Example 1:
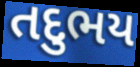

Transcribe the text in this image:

તદુભય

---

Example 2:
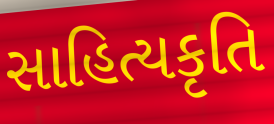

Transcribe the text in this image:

સાહિત્યકૃતિ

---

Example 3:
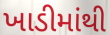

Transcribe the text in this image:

ખાડીમાંથી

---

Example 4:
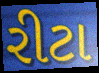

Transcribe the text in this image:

રીટા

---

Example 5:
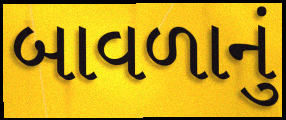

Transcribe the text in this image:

બાવળાનું